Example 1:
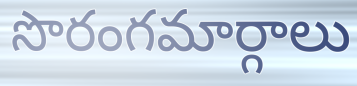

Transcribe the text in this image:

సొరంగమార్గాలు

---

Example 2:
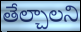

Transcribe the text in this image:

తేల్చాలని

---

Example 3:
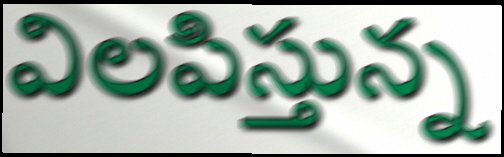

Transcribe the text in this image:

విలపిస్తున్న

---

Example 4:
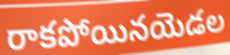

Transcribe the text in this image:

రాకపోయినయెడల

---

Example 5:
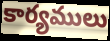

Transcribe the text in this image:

కార్యములు